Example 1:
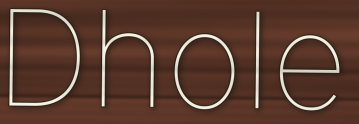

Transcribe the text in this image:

Dhole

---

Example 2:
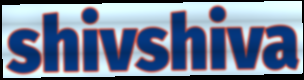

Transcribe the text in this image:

shivshiva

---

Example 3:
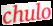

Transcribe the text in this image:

chulo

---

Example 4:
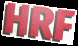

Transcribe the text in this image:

HRF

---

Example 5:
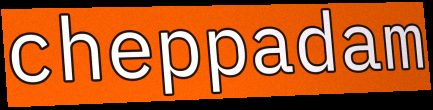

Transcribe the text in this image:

cheppadam